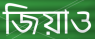
জিয়াও